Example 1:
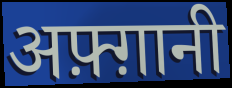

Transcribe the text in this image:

अफ़्ग़ानी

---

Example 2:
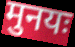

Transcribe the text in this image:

मुनयः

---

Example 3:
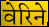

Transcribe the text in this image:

वेरिने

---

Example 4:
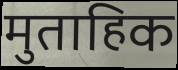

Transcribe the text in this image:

मुताहिक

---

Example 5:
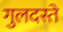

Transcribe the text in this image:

गुलदस्ते